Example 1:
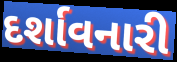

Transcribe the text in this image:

દર્શાવનારી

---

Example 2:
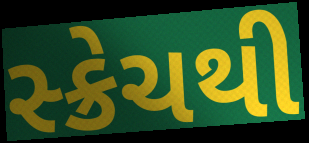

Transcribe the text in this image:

સ્ક્રેચથી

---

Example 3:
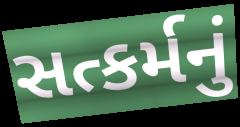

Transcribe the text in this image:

સત્કર્મનું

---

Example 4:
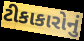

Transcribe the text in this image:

ટીકાકારોનું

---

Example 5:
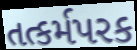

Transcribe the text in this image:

તત્કર્મપરક